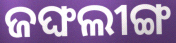
ଜଙ୍ଘଲୀଙ୍ଗ